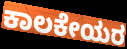
ಕಾಲಕೇಯರ